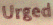
Urged